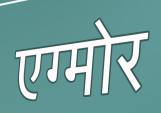
एग्मोर